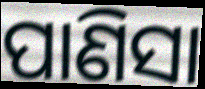
ପାଣିସା